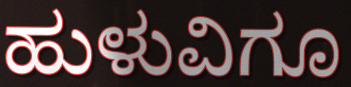
ಹುಳುವಿಗೂ